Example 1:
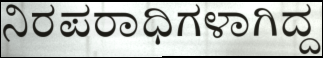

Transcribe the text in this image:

ನಿರಪರಾಧಿಗಳಾಗಿದ್ದ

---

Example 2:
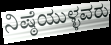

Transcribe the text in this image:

ನಿಷ್ಠೆಯುಳ್ಳವರು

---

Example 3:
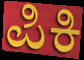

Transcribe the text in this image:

ಪಿಕಿ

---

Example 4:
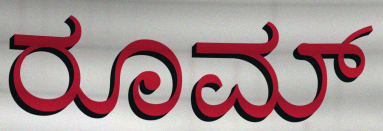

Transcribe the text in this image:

ರೂಮ್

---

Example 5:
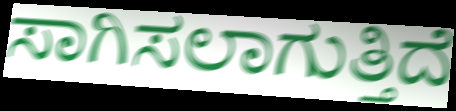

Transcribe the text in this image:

ಸಾಗಿಸಲಾಗುತ್ತಿದೆ